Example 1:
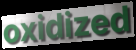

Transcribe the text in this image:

oxidized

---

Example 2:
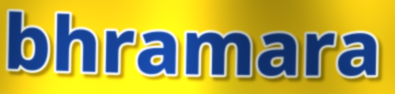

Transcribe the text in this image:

bhramara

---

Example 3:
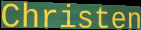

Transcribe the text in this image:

Christen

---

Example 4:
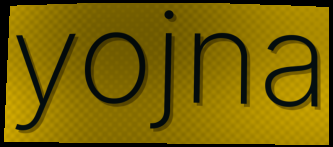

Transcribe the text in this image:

yojna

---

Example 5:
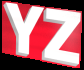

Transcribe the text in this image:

YZ